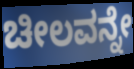
ಚೀಲವನ್ನೇ